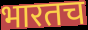
भारतच